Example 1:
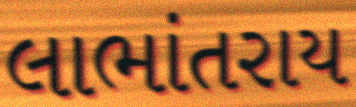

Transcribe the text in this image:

લાભાંતરાય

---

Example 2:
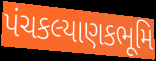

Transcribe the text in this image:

પંચકલ્યાણકભૂમિ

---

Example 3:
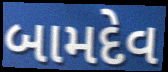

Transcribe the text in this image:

બામદેવ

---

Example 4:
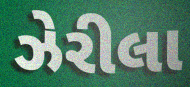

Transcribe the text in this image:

ઝેરીલા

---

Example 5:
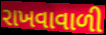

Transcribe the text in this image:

રાખવાવાળી